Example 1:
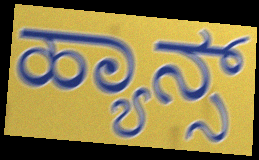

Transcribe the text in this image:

ಹ್ಯಾನ್ಸ್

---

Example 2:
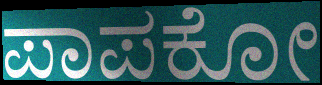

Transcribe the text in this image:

ಪಾಪಕೋ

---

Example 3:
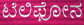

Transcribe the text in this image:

ಟೆಲಿಫೋನ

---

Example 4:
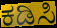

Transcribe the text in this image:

ಕಡಿಸಿ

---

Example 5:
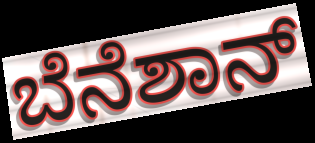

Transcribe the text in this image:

ಬೆನೆಶಾನ್